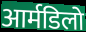
आर्मडिलो